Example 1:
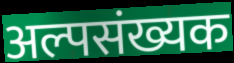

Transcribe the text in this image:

अल्पसंख्यक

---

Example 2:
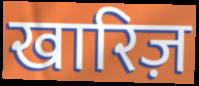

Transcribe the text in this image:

खारिज़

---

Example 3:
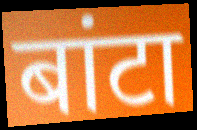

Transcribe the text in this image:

बांटा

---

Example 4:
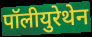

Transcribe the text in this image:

पॉलीयुरेथेन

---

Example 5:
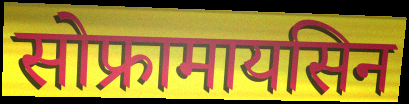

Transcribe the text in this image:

सोफ्रामायसिन